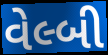
વેલ્બી